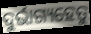
ଦୁର୍ଭାଗ୍ୟହେତୁ